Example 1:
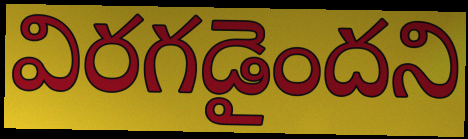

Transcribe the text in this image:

విరగడైందని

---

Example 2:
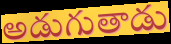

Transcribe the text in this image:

అడుగుతాడు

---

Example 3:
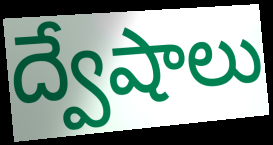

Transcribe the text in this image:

ద్వేషాలు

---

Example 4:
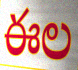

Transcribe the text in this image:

ఈల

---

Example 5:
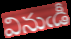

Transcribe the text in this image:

వినుఁడీ